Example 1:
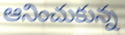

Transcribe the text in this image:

ఆనించుకున్న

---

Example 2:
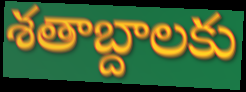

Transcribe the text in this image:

శతాబ్దాలకు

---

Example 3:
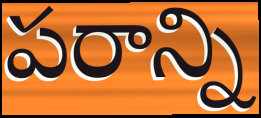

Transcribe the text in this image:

పరాన్ని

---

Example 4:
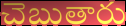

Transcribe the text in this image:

చెబుతారు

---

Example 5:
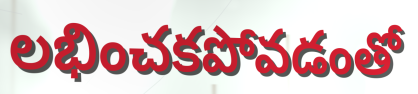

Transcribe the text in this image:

లభించకపోవడంతో